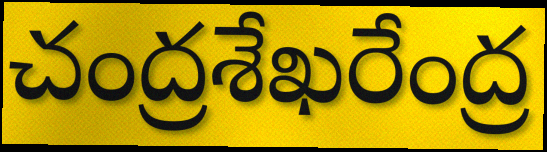
చంద్రశేఖరేంద్ర